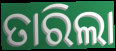
ତାରିଲା